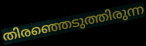
തിരഞ്ഞെടുത്തിരുന്ന